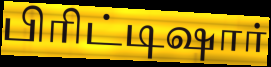
பிரிட்டிஷார்